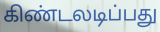
கிண்டலடிப்பது